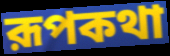
রূপকথা